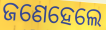
ଜଣେହେଲେ